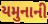
યમુનાની